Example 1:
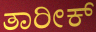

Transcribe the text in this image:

ತಾರೀಕ್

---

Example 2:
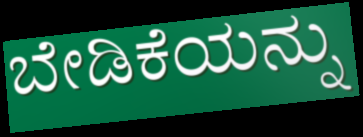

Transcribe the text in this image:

ಬೇಡಿಕೆಯನ್ನು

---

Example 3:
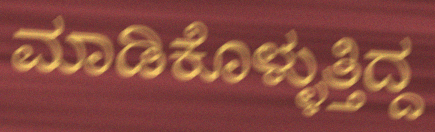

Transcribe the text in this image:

ಮಾಡಿಕೊಳ್ಳುತ್ತಿದ್ದ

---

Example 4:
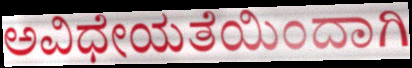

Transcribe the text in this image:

ಅವಿಧೇಯತೆಯಿಂದಾಗಿ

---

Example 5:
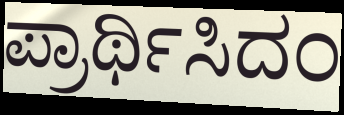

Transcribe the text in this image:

ಪ್ರಾರ್ಥಿಸಿದಂ